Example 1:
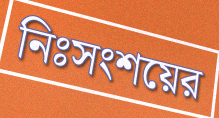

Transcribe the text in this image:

নিঃসংশয়ের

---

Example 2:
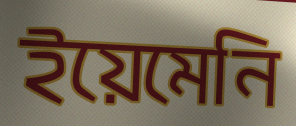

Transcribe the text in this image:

ইয়েমেনি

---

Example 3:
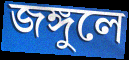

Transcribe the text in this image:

জঙ্গুলে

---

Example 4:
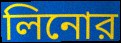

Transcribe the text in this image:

লিনোর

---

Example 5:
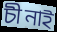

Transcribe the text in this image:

চীনাই